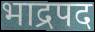
भाद्रपद